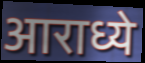
आराध्ये